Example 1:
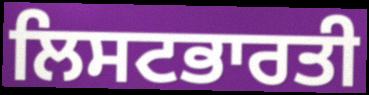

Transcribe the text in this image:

ਲਿਸਟਭਾਰਤੀ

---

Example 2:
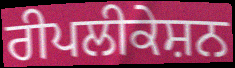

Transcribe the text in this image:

ਰੀਪਲੀਕੇਸ਼ਨ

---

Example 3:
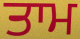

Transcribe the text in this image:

ਤਾਮ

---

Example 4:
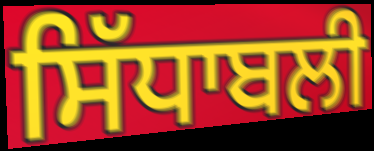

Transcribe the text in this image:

ਸਿੱਧਾਬਲੀ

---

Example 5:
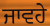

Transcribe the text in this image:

ਜਾਵਹੇ